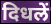
दिधलें